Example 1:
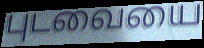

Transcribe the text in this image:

புடவையை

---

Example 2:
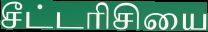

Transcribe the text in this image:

சீட்டரிசியை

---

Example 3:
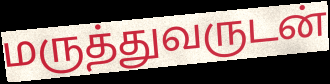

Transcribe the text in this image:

மருத்துவருடன்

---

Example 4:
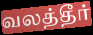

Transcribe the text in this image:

வலத்தீர்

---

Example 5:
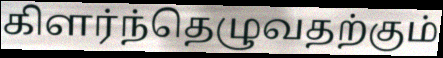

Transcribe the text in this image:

கிளர்ந்தெழுவதற்கும்